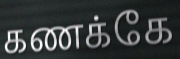
கணக்கே